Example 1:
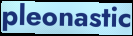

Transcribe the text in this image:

pleonastic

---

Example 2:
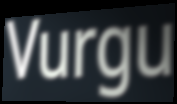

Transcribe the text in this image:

Vurgu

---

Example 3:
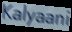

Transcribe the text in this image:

Kalyaani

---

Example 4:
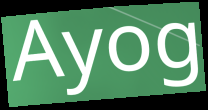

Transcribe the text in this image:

Ayog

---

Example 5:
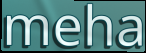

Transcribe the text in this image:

meha